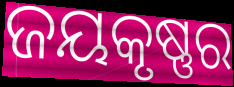
ଜୟକୃଷ୍ଣର